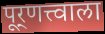
पूर्णत्त्वाला